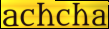
achcha